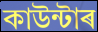
কাউন্টাৰ